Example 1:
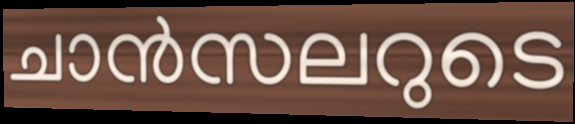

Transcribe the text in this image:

ചാൻസലറുടെ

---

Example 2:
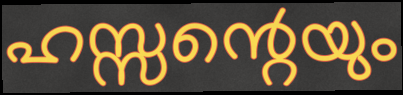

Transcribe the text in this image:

ഹസ്സന്റെയും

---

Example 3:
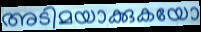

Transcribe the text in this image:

അടിമയാക്കുകയോ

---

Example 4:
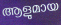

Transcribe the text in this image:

ആളുമായ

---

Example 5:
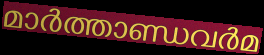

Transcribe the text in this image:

മാർത്താണ്ഡവർമ